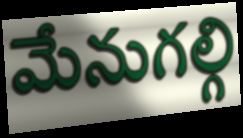
మేనుగల్గి